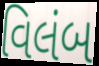
વિલંબ